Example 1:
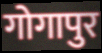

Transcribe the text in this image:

गोगापुर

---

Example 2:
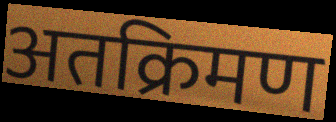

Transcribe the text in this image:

अतक्रिमण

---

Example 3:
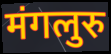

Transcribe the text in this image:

मंगलुरु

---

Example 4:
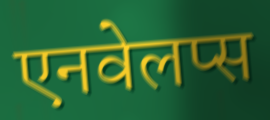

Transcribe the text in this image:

एनवेलप्स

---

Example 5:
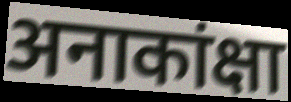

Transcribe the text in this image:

अनाकांक्षा